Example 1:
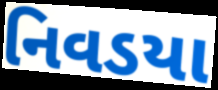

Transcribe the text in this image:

નિવડયા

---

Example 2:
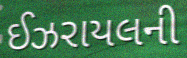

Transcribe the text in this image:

ઈઝરાયલની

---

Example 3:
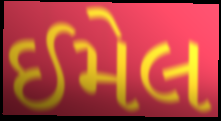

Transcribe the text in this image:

ઈમેલ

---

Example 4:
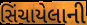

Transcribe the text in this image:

સિંચાયેલાની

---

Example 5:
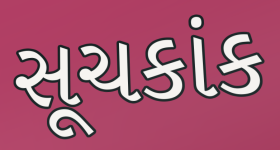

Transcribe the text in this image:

સૂચકાંક